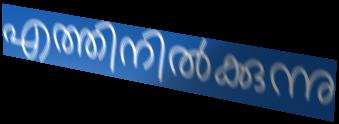
എത്തിനിൽക്കുന്നു